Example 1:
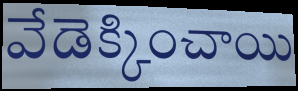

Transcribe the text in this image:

వేడెక్కించాయి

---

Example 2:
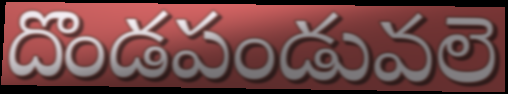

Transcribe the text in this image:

దొండపండువలె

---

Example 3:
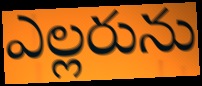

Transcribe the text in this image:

ఎల్లరును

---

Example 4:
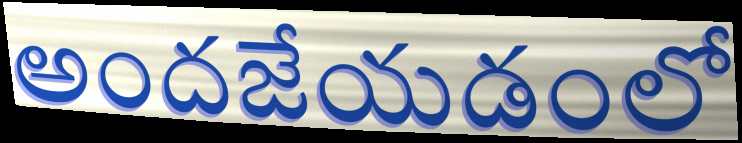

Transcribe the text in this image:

అందజేయడంలో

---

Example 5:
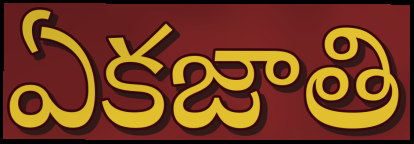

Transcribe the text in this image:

ఏకజాతి